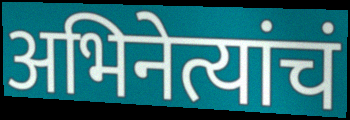
अभिनेत्यांचं